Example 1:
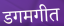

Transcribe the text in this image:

डगमगीत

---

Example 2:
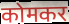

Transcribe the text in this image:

कोमकर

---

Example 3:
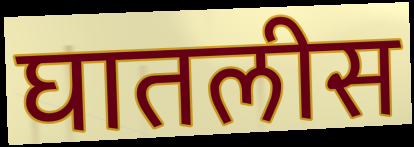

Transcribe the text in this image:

घातलीस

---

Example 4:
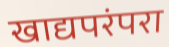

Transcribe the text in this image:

खाद्यपरंपरा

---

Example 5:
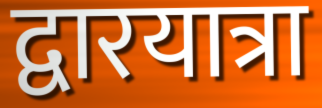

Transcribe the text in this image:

द्वारयात्रा